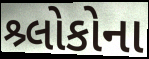
શ્ર્લોકોના